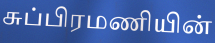
சுப்பிரமணியின்